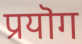
प्रयॊग